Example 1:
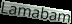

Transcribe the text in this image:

Lamabam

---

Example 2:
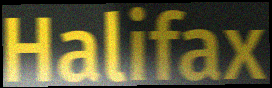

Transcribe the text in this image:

Halifax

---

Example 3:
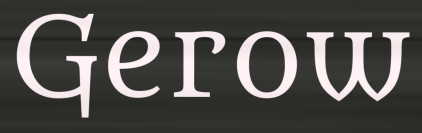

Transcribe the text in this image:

Gerow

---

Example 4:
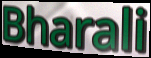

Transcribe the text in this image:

Bharali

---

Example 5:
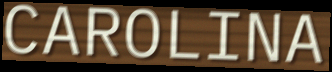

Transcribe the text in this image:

CAROLINA